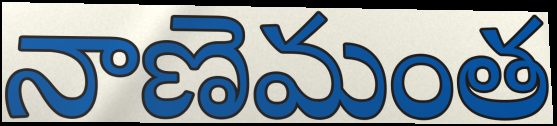
నాణెమంత